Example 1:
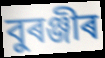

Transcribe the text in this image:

বুৰঞ্জীৰ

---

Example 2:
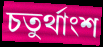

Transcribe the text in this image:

চতুৰ্থাংশ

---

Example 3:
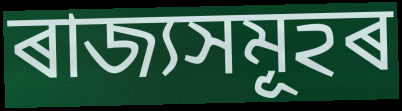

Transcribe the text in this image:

ৰাজ্যসমূহৰ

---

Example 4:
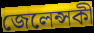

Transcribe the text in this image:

জেলেন্সকী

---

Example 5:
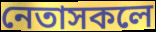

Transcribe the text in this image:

নেতাসকলে